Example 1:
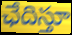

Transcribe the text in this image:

ఛేదిస్తూ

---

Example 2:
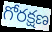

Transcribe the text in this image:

గోరక్షణ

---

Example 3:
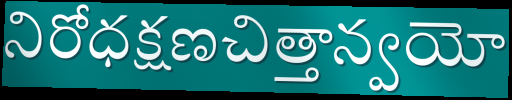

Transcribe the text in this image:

నిరోధక్షణచిత్తాన్వయో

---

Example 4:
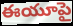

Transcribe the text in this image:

ఈయూపై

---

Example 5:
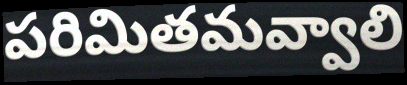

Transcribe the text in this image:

పరిమితమవ్వాలి